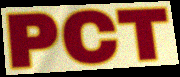
PCT